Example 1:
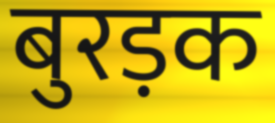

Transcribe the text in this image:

बुरड़क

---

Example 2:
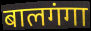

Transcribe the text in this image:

बालगंगा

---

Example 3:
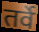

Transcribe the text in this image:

तर्वे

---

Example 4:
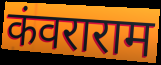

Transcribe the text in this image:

कंवराराम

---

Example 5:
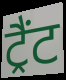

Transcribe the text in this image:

ट्रैंट